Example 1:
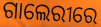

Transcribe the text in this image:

ଗାଲେରୀରେ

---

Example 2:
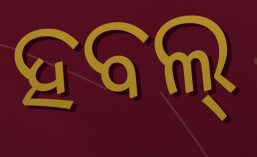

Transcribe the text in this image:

ହବଲ୍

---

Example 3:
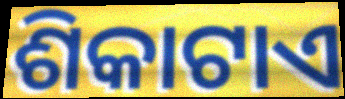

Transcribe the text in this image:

ଶିକାଟାଏ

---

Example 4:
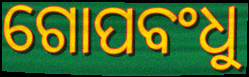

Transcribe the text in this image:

ଗୋପବଂଧୁ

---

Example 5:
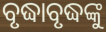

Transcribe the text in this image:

ବୃଦ୍ଧାବୃଦ୍ଧଙ୍କୁ